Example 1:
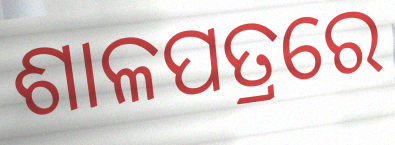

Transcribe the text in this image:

ଶାଳପତ୍ରରେ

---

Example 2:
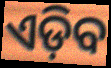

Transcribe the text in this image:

ଏଡ଼ିବ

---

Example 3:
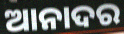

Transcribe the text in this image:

ଆନାଦର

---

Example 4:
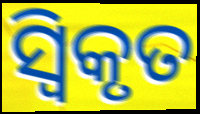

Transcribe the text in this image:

ସ୍ଵିକୃତ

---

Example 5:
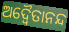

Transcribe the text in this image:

ଅଦ୍ଵୈତାନନ୍ଦ